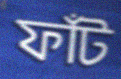
ফাঁট